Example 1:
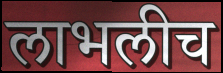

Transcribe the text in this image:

लाभलीच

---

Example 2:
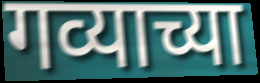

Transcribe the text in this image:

गव्याच्या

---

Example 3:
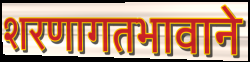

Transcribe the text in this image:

शरणागतभावाने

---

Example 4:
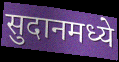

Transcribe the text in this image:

सुदानमध्ये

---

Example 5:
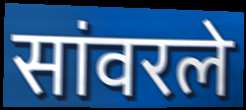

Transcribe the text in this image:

सांवरले